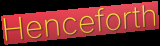
Henceforth